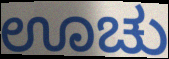
ಊಚು